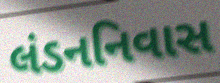
લંડનનિવાસ